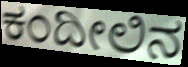
ಕಂದೀಲಿನ